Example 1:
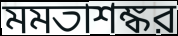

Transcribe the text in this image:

মমতাশঙ্কর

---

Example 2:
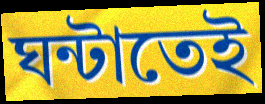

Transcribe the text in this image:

ঘন্টাতেই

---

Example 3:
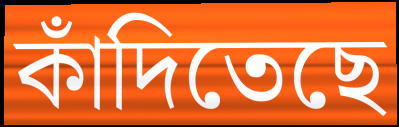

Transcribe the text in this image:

কাঁদিতেছে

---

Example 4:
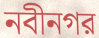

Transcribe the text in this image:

নবীনগর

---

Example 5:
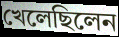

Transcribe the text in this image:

খেলেছিলেন